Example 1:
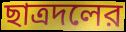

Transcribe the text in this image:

ছাত্রদলের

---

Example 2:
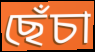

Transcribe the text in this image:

ছেঁচা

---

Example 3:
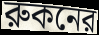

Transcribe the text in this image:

রুকনের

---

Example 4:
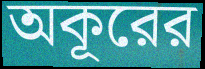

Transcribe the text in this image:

অকূরের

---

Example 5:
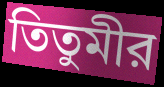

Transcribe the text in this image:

তিতুমীর